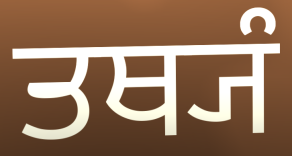
ਤਥ੍ਯੰ